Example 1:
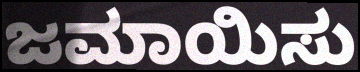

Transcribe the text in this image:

ಜಮಾಯಿಸು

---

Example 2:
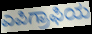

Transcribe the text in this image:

ಎಪಿಗ್ರಾಫಿಯ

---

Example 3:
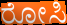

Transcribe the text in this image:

ರೋಸಿ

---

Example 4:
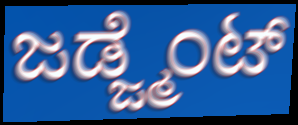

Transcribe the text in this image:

ಜಡ್ಜ್ಮೆಂಟ್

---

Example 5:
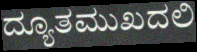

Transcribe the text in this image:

ದ್ಯೂತಮುಖದಲಿ